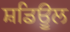
ਸ਼ਡਿਊਲ